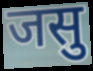
जसु